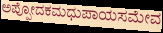
ಅಪ್ಪೋದಕಮಧುಪಾಯಸಮೇವ